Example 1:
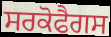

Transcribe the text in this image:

ਸਰਕੋਫੈਗਸ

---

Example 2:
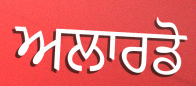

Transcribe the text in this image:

ਅਲਾਰਡੋ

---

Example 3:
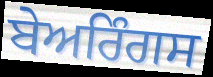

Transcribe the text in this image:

ਬੇਅਰਿੰਗਸ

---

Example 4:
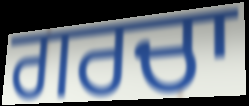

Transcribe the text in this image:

ਗਰਚਾ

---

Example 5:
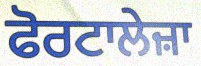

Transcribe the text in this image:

ਫੋਰਟਾਲੇਜ਼ਾ